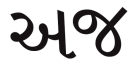
અજ